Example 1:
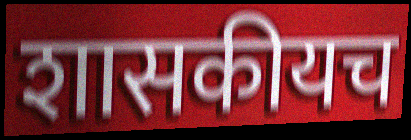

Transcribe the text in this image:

शासकीयच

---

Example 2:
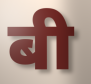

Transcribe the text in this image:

बी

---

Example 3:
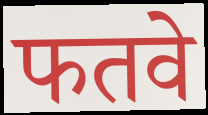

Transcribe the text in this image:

फतवे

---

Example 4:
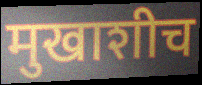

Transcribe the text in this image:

मुखाशीच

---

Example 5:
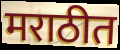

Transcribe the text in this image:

मराठीत